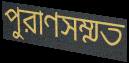
পুরাণসম্মত